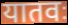
यातवः